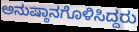
ಅನುಷ್ಠಾನಗೊಳಿಸಿದ್ದರು